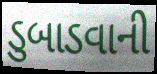
ડુબાડવાની